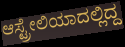
ಆಸ್ಟ್ರೇಲಿಯಾದಲ್ಲಿದ್ದ